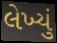
લેખ્યું